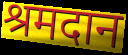
श्रमदान